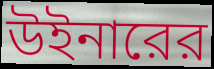
উইনারের